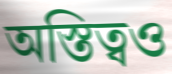
অস্তিত্বও